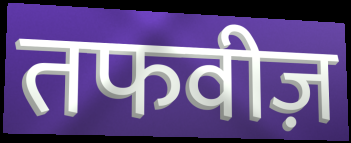
तफवीज़